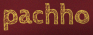
pachho